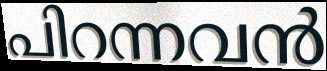
പിറന്നവൻ